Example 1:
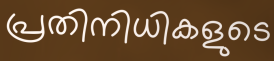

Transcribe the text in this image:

പ്രതിനിധികളുടെ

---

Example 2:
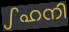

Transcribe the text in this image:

ഽഹനി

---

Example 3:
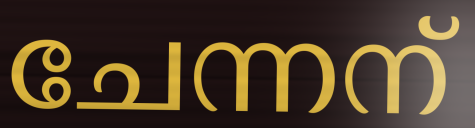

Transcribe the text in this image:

ചേന്നന്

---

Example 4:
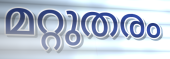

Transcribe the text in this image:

മറ്റുതരം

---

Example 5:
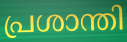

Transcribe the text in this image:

പ്രശാന്തി